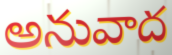
అనువాద